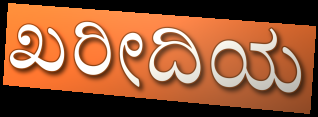
ಖರೀದಿಯ